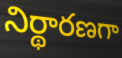
నిర్థారణగా